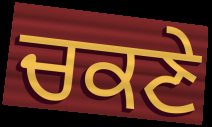
ਚਕਣੇ